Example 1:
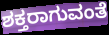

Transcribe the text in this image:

ಶಕ್ತರಾಗುವಂತೆ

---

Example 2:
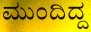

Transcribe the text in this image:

ಮುಂದಿದ್ದ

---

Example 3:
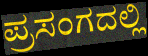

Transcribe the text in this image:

ಪ್ರಸಂಗದಲ್ಲಿ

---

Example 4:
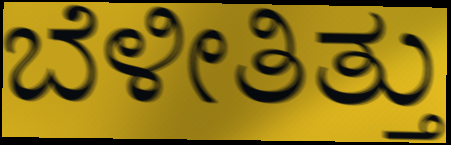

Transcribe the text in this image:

ಬೆಳೀತಿತ್ತು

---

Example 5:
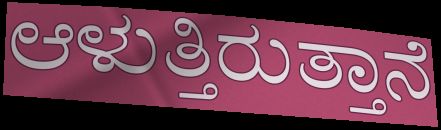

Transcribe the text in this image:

ಆಳುತ್ತಿರುತ್ತಾನೆ